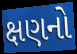
ક્ષણનો